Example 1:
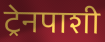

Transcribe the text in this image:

ट्रेनपाशी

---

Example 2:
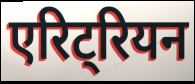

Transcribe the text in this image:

एरिट्रियन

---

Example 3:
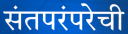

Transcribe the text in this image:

संतपरंपरेची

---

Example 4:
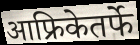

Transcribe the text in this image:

आफ्रिकेतर्फे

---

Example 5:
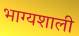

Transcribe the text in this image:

भाग्यशाली